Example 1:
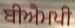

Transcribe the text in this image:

ਬੀਐਮਪੀ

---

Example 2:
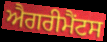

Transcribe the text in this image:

ਐਗਰੀਮੈਂਟਸ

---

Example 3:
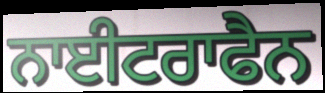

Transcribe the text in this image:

ਨਾਈਟਰਾਫੈਨ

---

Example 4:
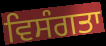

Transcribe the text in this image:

ਵਿਸੰਗਤਾ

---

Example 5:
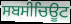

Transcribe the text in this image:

ਸਬਸੀਚਿਊਟ